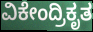
ವಿಕೇಂದ್ರಿಕೃತ